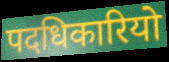
पदधिकारियो